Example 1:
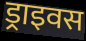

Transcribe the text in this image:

ड्राइवस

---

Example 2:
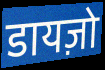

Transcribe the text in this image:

डायज़ो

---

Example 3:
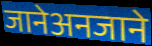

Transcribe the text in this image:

जानेअनजाने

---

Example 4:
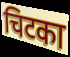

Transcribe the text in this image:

चिटका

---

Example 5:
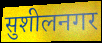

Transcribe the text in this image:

सुशीलनगर